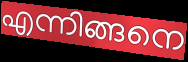
എന്നിങ്ങനെ